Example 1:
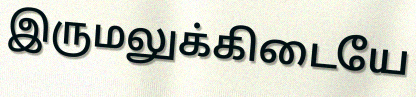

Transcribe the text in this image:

இருமலுக்கிடையே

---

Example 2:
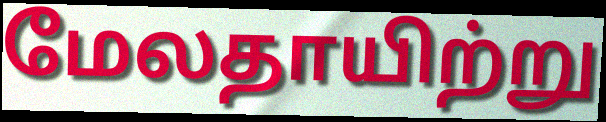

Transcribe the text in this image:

மேலதாயிற்று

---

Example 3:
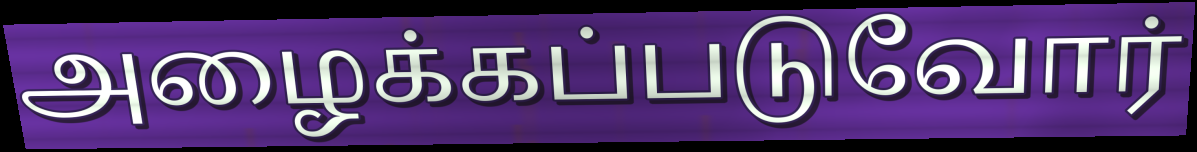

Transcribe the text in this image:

அழைக்கப்படுவோர்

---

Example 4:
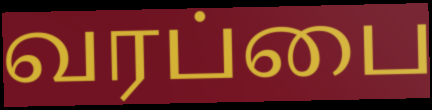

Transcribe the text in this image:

வரப்பை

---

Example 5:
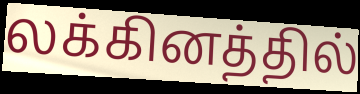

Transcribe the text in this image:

லக்கினத்தில்